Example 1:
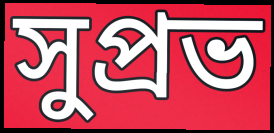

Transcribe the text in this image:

সুপ্রভ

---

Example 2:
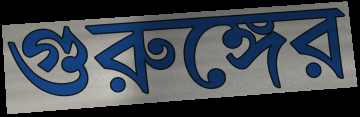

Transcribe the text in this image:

গুরুঙ্গের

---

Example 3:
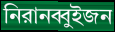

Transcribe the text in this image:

নিরানব্বুইজন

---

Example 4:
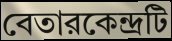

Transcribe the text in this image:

বেতারকেন্দ্রটি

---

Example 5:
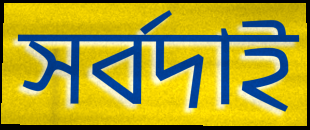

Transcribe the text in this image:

সর্বদাই